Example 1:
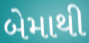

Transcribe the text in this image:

બેમાથી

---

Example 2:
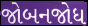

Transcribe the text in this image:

જોબનજોધ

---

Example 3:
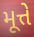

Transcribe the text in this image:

મૂત્તે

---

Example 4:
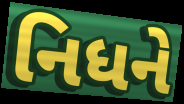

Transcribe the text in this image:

નિધને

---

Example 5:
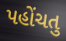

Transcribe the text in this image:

પહોંચતુ